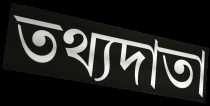
তথ্যদাতা